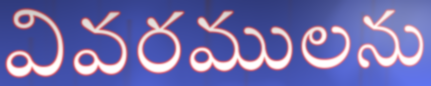
వివరములను